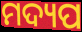
ମଦ୍ୟପ